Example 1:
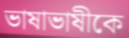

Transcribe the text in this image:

ভাষাভাষীকে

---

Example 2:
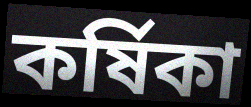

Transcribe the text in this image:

কর্ষিকা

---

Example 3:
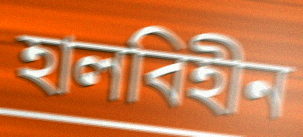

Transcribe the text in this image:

হালবিহীন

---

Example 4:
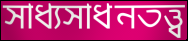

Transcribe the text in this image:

সাধ্যসাধনতত্ত্ব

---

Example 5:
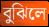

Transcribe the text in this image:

বুঝিলে